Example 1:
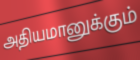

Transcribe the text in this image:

அதியமானுக்கும்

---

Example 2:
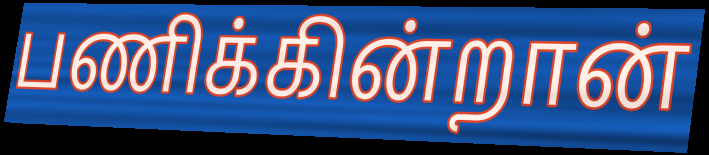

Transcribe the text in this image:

பணிக்கின்றான்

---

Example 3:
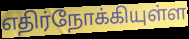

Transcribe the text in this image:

எதிர்நோக்கியுள்ள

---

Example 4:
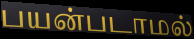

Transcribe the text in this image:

பயன்படாமல்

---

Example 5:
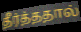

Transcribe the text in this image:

தீர்த்ததால்